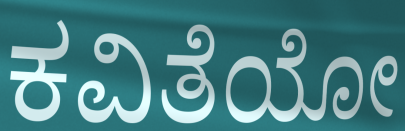
ಕವಿತೆಯೋ